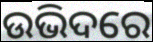
ଉଭିଦରେ